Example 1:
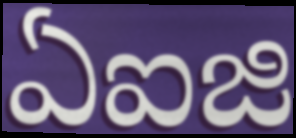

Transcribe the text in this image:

ఏఐజి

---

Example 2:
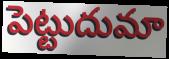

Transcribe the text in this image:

పెట్టుదుమా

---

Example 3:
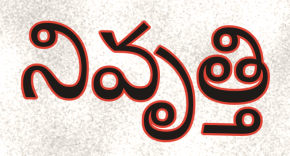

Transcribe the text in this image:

నివృత్తి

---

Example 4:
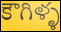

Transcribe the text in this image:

కౌగిళ్ళ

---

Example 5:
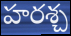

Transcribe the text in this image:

హరశ్చ